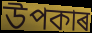
উপকাৰ